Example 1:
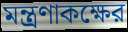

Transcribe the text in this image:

মন্ত্রণাকক্ষের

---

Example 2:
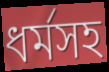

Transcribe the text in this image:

ধর্মসহ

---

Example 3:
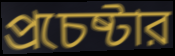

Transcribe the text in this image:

প্রচেষ্টার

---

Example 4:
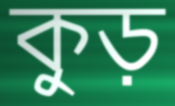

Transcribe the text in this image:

কুড়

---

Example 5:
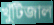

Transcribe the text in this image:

খুঁটিজাল